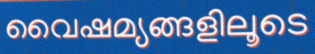
വൈഷമ്യങ്ങളിലൂടെ